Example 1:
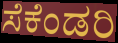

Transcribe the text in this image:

ಸೆಕೆಂಡರಿ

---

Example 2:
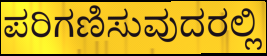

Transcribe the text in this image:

ಪರಿಗಣಿಸುವುದರಲ್ಲಿ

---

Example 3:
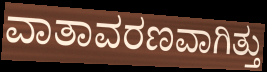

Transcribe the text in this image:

ವಾತಾವರಣವಾಗಿತ್ತು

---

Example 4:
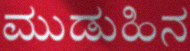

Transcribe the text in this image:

ಮುಡುಹಿನ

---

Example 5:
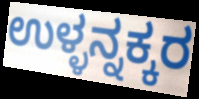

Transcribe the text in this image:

ಉಳ್ಳನ್ನಕ್ಕರ